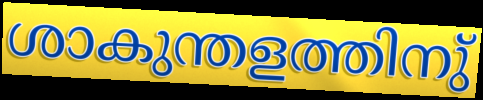
ശാകുന്തളത്തിനു്